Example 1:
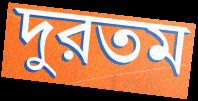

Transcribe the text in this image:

দুরতম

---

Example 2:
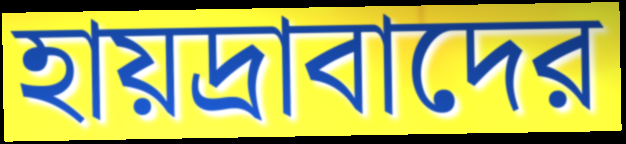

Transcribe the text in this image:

হায়দ্রাবাদের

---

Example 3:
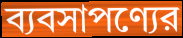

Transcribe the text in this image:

ব্যবসাপণ্যের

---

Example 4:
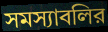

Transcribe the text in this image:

সমস্যাবলির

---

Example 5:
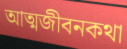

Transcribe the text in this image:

আত্মজীবনকথা